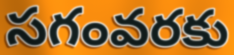
సగంవరకు